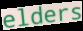
elders